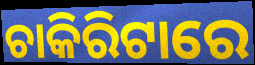
ଚାକିରିଟାରେ